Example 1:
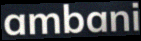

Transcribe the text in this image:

ambani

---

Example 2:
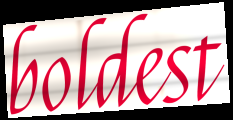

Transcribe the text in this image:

boldest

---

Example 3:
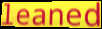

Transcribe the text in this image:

leaned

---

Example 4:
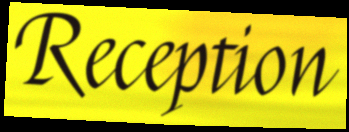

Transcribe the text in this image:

Reception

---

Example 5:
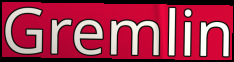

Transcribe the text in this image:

Gremlin